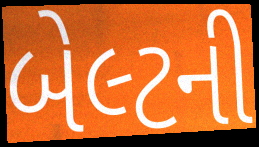
બેલ્ટની